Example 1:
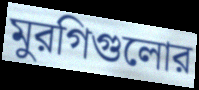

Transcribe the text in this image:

মুরগিগুলোর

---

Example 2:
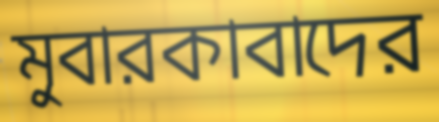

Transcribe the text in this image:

মুবারকাবাদের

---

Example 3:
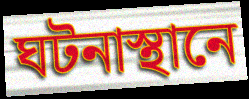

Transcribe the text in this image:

ঘটনাস্থানে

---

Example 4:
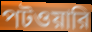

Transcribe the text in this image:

পটওয়ারি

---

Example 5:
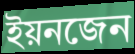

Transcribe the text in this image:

ইয়নজেন